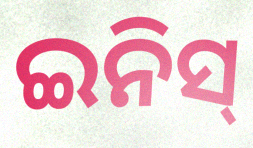
ଇନିସ୍